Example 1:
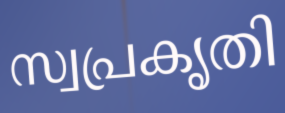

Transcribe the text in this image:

സ്വപ്രകൃതി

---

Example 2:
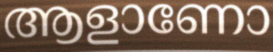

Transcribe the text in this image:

ആളാണോ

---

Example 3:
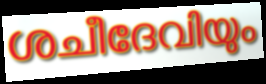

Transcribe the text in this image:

ശചീദേവിയും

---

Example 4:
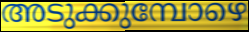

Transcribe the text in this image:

അടുക്കുമ്പോഴെ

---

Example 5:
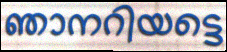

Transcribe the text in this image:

ഞാനറിയട്ടെ